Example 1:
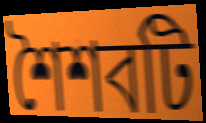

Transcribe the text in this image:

শৈশবটি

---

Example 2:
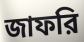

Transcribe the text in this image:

জাফরি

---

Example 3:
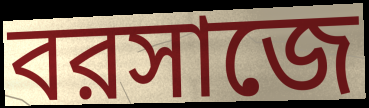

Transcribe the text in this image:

বরসাজে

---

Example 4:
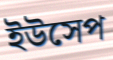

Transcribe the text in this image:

ইউসেপ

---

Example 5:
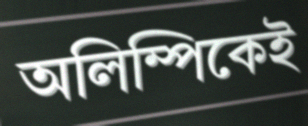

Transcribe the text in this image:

অলিম্পিকেই